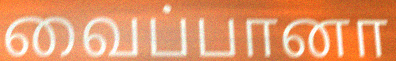
வைப்பானா